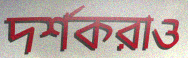
দর্শকরাও